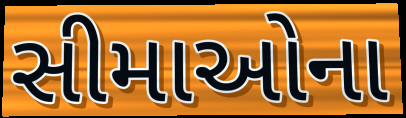
સીમાઓના